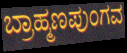
ಬ್ರಾಹ್ಮಣಪುಂಗವ